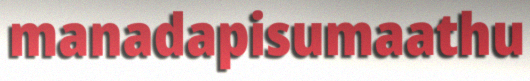
manadapisumaathu